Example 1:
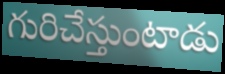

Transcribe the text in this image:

గురిచేస్తుంటాడు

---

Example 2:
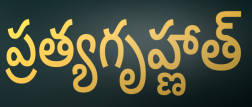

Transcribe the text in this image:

ప్రత్యగృహ్ణాత్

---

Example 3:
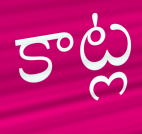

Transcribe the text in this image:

కాట్ల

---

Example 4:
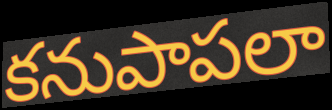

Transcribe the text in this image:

కనుపాపలా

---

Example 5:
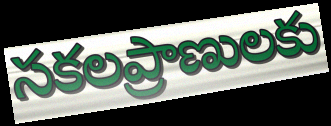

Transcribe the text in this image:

సకలప్రాణులకు